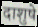
दाशुषे